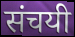
संचयी